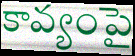
కావ్యంపై